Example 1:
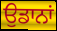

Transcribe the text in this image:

ਉਡਾਨਾਂ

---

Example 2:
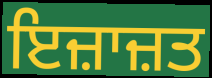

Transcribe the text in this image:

ਇਜ਼ਾਜ਼ਤ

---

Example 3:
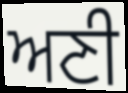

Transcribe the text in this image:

ਅਣੀ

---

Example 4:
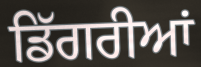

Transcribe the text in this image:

ਡਿੱਗਰੀਆਂ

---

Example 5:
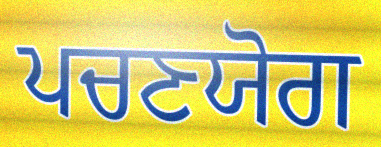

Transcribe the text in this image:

ਪਚਣਯੋਗ